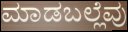
ಮಾಡಬಲ್ಲೆವು